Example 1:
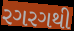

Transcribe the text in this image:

રગરગથી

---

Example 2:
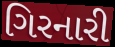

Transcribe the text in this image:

ગિરનારી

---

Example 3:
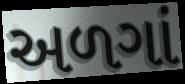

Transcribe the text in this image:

અળગાં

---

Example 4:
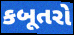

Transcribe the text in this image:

કબૂતરો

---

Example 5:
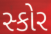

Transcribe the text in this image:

સ્કોર